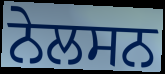
ਨੇਲਸਨ